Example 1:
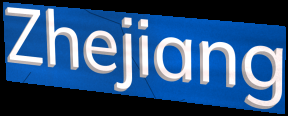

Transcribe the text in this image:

Zhejiang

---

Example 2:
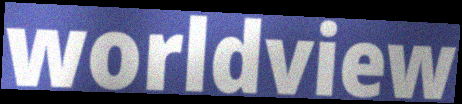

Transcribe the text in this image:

worldview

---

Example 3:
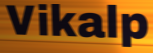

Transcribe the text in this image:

Vikalp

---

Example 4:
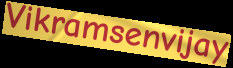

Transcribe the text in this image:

Vikramsenvijay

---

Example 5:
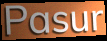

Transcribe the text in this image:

Pasur